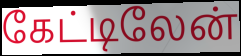
கேட்டிலேன்